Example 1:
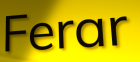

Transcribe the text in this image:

Ferar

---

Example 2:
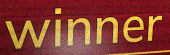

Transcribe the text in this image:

winner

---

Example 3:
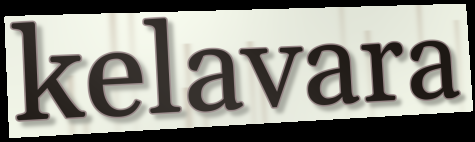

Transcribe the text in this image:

kelavara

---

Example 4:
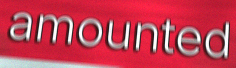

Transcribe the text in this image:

amounted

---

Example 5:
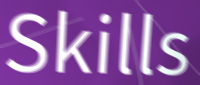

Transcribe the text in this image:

Skills